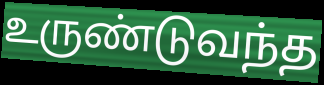
உருண்டுவந்த